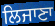
ਲਿਜਾਣਾ